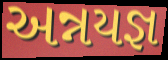
અન્નયજ્ઞ